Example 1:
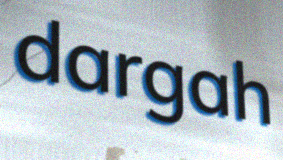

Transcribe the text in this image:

dargah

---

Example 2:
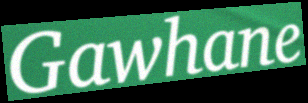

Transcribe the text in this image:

Gawhane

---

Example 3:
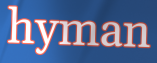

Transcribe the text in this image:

hyman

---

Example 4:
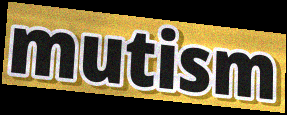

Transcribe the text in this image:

mutism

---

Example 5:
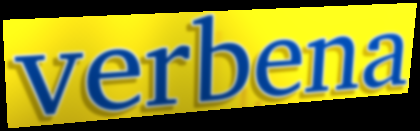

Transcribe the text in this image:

verbena